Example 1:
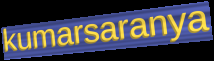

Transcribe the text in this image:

kumarsaranya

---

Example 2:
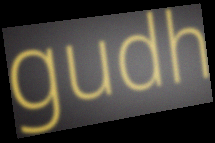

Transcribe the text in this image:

gudh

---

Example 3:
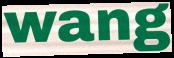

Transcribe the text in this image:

wang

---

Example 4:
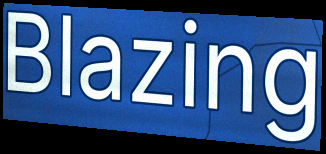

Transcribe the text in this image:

Blazing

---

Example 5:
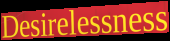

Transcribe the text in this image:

Desirelessness